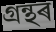
গ্ৰন্থৰ